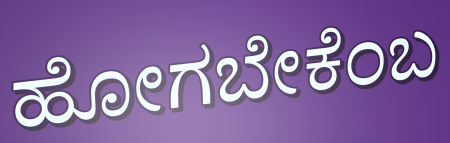
ಹೋಗಬೇಕೆಂಬ